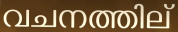
വചനത്തില്